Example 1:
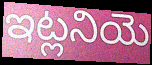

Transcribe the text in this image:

ఇట్లనియె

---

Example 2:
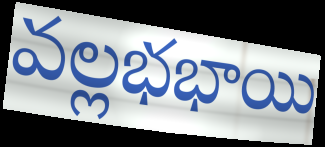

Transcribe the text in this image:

వల్లభభాయి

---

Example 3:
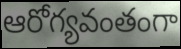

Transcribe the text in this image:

ఆరోగ్యవంతంగా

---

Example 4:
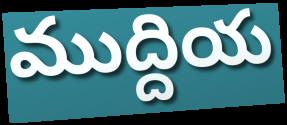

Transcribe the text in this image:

ముద్దియ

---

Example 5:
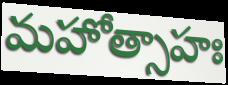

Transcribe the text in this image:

మహోత్సాహః